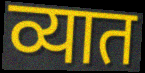
व्यात